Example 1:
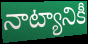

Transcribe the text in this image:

నాట్యానికీ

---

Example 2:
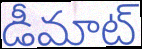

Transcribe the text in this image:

డీమాట్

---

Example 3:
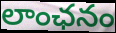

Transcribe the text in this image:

లాంఛనం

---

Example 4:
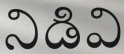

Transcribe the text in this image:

నిడివి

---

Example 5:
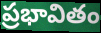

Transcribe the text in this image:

ప్రభావితం